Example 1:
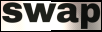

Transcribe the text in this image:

swap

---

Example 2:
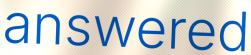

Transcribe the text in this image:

answered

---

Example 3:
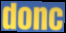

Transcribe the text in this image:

donc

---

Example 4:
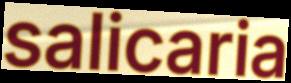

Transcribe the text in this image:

salicaria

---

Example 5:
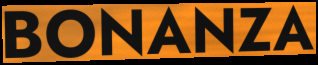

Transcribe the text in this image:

BONANZA